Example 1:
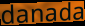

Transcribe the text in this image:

danada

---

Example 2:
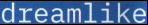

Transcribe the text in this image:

dreamlike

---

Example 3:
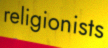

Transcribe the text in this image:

religionists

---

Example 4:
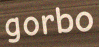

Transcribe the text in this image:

gorbo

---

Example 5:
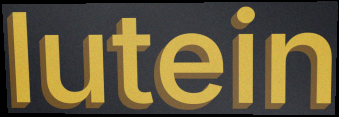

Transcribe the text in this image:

lutein